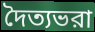
দৈত্যভরা